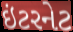
ઇંટરનેટ